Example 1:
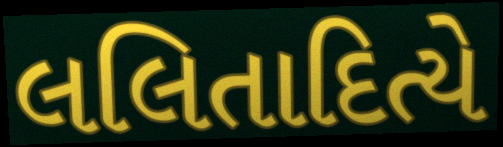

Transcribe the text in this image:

લલિતાદિત્યે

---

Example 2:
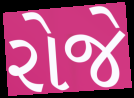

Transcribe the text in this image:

રોજે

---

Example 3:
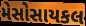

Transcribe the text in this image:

મેસોસાયકલ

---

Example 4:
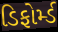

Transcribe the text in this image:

ડિફોર્મ્ડ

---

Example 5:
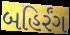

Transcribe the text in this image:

બહિર્રંગ